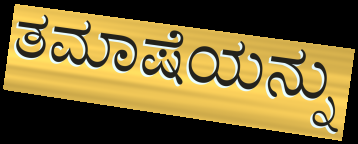
ತಮಾಷೆಯನ್ನು